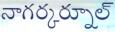
నాగర్కర్నూల్